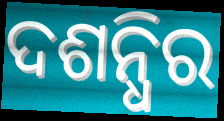
ଦଶନ୍ଧିର